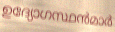
ഉദ്യോഗസ്ഥൻമാർ